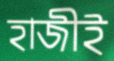
হাজীই